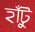
হাঁটু